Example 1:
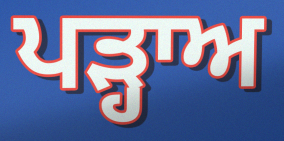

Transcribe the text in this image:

ਪੜ੍ਹਾਅ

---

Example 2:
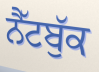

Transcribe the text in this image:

ਨੈੱਟਬੁੱਕ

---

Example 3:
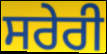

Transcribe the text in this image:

ਸਰੇਰੀ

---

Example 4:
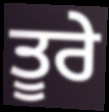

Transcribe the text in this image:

ਤੂਰੇ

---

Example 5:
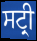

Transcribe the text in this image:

ਸਟ੍ਰੀ